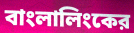
বাংলালিংকের